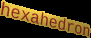
hexahedron